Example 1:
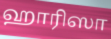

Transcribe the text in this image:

ஹாரிஸா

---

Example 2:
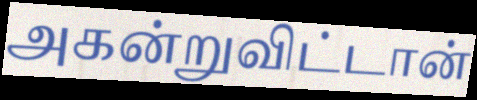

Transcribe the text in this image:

அகன்றுவிட்டான்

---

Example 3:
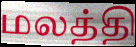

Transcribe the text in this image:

மலத்தி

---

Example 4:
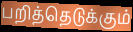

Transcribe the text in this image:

பறித்தெடுக்கும்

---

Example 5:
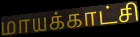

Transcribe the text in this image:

மாயக்காட்சி